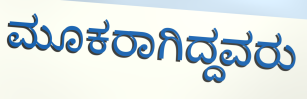
ಮೂಕರಾಗಿದ್ದವರು